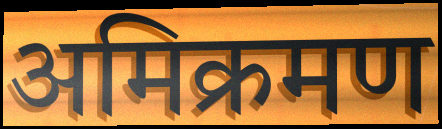
अमिक्रमण